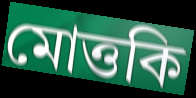
মোত্তকি